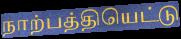
நாற்பத்தியெட்டு